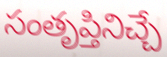
సంతృప్తినిచ్చే